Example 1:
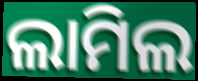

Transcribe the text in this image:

ଲାମିଲ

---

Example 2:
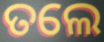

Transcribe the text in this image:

ତଲେ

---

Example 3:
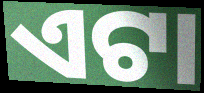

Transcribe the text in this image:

ଏଟା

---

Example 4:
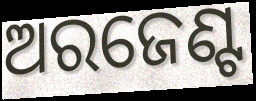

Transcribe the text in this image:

ଅରଜେଣ୍ଟ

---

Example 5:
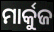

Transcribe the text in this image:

ମାର୍କୁଜ